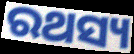
ରଥସ୍ୟ